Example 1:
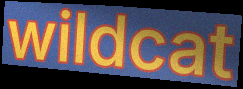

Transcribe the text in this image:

wildcat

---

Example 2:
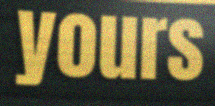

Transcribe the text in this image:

yours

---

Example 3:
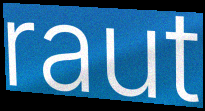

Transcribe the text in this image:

raut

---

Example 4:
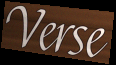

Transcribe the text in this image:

Verse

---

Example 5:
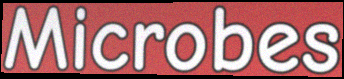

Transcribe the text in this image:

Microbes